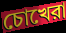
চোখেরা